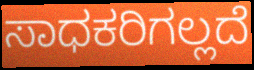
ಸಾಧಕರಿಗಲ್ಲದೆ